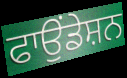
ਫਾਉਂਡੇਸ਼ਨ